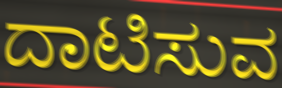
ದಾಟಿಸುವ